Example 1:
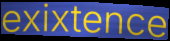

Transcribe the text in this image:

exixtence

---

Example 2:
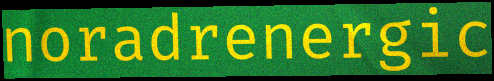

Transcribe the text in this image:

noradrenergic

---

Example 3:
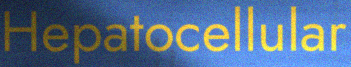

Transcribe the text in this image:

Hepatocellular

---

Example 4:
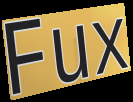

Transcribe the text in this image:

Fux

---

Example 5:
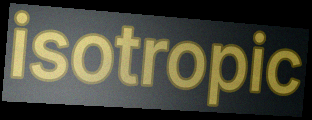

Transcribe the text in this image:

isotropic